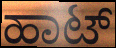
ಹಾಟ್